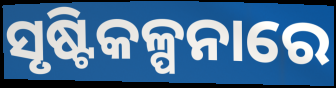
ସୃଷ୍ଟିକଳ୍ପନାରେ